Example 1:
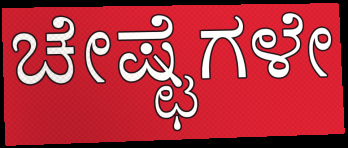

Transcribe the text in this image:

ಚೇಷ್ಟೆಗಳೇ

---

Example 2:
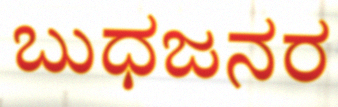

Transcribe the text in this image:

ಬುಧಜನರ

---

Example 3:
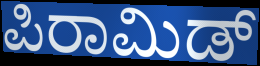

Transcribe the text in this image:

ಪಿರಾಮಿಡ್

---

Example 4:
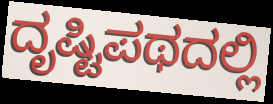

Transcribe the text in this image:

ದೃಷ್ಟಿಪಥದಲ್ಲಿ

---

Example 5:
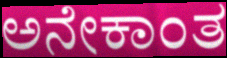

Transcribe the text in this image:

ಅನೇಕಾಂತ